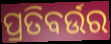
ପ୍ରତିବର୍ଉର